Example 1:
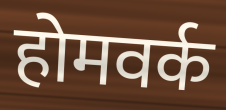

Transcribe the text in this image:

होमवर्क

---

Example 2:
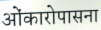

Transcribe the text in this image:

ओंकारोपासना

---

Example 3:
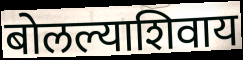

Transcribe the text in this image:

बोलल्याशिवाय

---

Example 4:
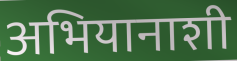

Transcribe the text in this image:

अभियानाशी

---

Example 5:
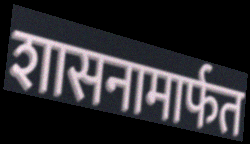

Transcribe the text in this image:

शासनामार्फत